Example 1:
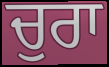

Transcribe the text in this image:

ਚੁਰਾ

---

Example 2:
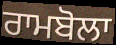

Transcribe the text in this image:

ਰਾਮਬੋਲਾ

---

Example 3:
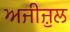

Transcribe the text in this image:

ਅਜੀਜ਼ੁਲ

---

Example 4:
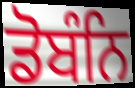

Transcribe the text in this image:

ਡੋਬੰਨਿ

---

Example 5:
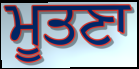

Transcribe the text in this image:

ਮੂਤਣਾ